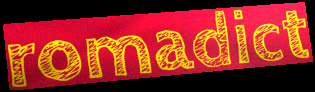
romadict